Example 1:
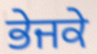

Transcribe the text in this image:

ਭੇਜਕੇ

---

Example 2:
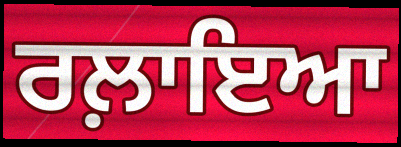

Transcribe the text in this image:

ਰਲ਼ਾਇਆ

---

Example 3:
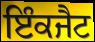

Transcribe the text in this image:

ਇੰਕਜੈਟ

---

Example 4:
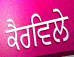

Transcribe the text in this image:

ਕੈਰਵਿਲੇ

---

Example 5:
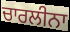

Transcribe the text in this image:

ਚਾਰਲੀਨਾ